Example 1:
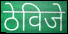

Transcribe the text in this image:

ठेविजे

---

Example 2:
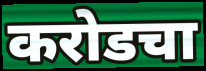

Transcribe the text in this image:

करोडचा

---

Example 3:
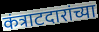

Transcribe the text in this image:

कंत्राटदारांच्या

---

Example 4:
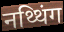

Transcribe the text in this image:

नथ्थिंग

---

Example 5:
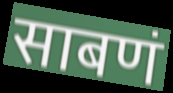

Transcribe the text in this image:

साबणं